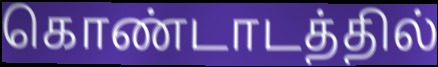
கொண்டாடத்தில்